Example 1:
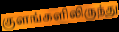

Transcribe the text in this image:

குளங்களிலிருந்து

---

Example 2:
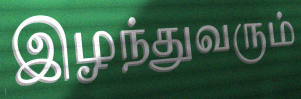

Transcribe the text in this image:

இழந்துவரும்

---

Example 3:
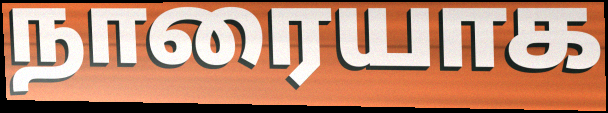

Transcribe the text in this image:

நாரையாக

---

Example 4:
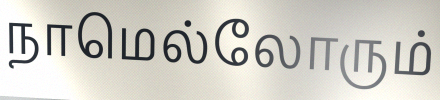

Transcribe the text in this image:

நாமெல்லோரும்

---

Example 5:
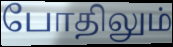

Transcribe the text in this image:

போதிலும்